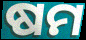
ଷମ